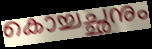
കൊച്ചച്ഛനും